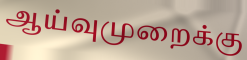
ஆய்வுமுறைக்கு